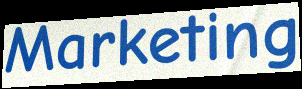
Marketing